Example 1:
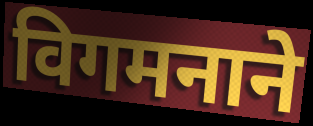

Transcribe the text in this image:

विगमनाने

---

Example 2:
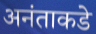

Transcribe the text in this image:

अनंताकडे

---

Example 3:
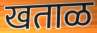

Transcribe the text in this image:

खताळ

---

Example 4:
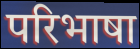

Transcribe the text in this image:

परिभाषा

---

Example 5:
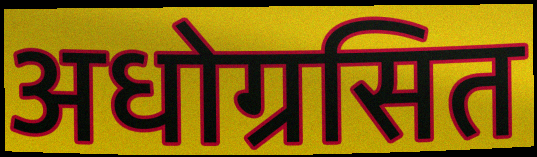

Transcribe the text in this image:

अधोग्रसित